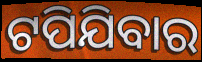
ଟପିଯିବାର